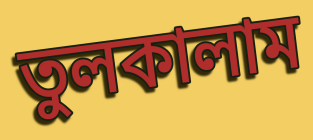
তুলকালাম